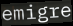
emigre